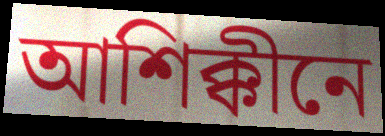
আশিক্কীনে